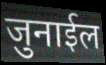
जुनाईल